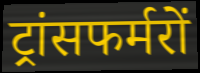
ट्रांसफर्मरों